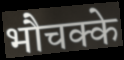
भौचक्के